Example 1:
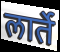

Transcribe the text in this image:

लार्ते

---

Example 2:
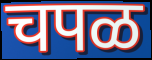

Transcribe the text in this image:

चपळ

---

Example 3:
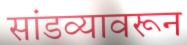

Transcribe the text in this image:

सांडव्यावरून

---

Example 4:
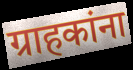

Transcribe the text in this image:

ग्राहकांना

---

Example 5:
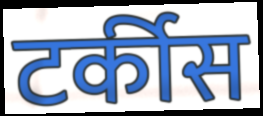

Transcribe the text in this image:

टर्कीस